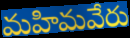
మహిమవేరు